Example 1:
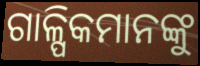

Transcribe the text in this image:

ଗାଳ୍ପିକମାନଙ୍କୁ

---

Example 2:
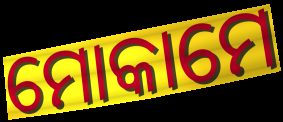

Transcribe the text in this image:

ମୋକାମେ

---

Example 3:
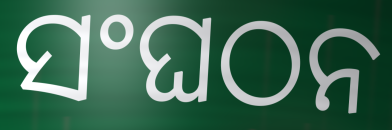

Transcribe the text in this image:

ସଂଘଠନ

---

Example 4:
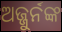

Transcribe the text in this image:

ଅଜ୍ଜୁର୍ନଙ୍କ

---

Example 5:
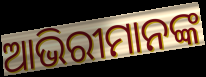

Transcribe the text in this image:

ଆଭିରୀମାନଙ୍କ